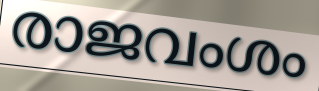
രാജവംശം